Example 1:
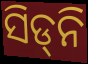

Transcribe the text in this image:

ସିଡ୍‍ନି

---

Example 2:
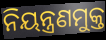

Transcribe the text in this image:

ନିୟନ୍ତ୍ରଣମୁକ୍ତ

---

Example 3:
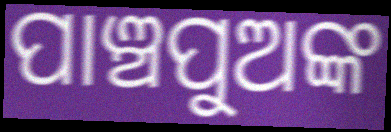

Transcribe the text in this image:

ପାଞ୍ଚପୁଅଙ୍କ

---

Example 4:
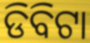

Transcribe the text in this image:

ଡିବିଟା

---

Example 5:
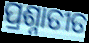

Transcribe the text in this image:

ପ୍ରଶ୍ନାତୀତ